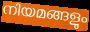
നിയമങ്ങളും